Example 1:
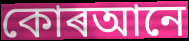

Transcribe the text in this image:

কোৰআনে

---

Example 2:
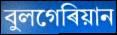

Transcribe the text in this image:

বুলগেৰিয়ান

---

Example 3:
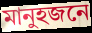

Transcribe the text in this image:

মানুহজনে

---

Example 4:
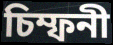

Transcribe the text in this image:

চিম্ফনী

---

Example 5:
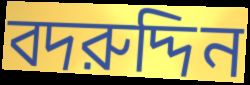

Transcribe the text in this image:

বদৰুদ্দিন